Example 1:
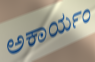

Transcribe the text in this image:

ಅಕಾರ್ಯಂ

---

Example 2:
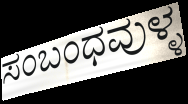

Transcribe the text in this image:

ಸಂಬಂಧವುಳ್ಳ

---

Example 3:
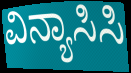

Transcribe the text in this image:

ವಿನ್ಯಾಸಿಸಿ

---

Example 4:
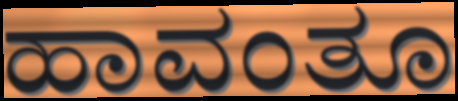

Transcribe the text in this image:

ಹಾವಂತೂ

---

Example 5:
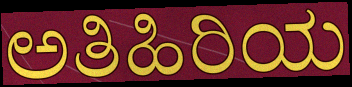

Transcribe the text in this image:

ಅತಿಹಿರಿಯ